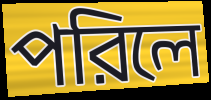
পরিলে